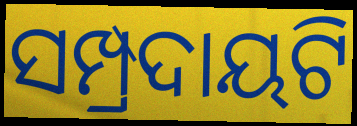
ସମ୍ପ୍ରଦାୟଟି